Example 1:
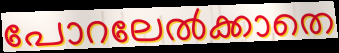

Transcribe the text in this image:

പോറലേൽക്കാതെ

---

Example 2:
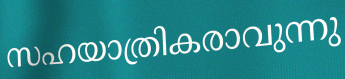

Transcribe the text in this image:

സഹയാത്രികരാവുന്നു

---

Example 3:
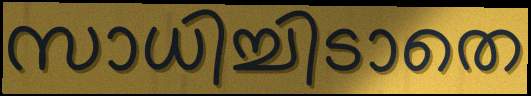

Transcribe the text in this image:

സാധിച്ചിടാതെ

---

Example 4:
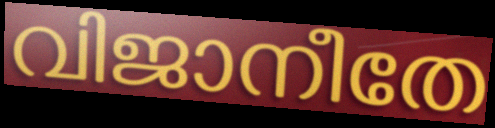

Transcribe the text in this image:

വിജാനീതേ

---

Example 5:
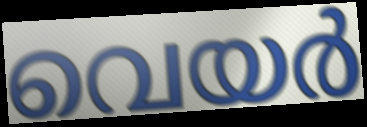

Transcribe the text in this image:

വെയർ